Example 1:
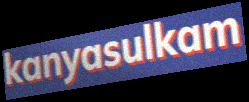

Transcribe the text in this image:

kanyasulkam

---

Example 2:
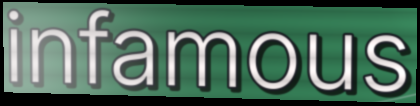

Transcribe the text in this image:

infamous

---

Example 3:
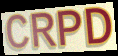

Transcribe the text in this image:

CRPD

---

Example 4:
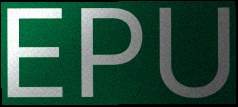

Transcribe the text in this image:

EPU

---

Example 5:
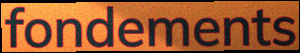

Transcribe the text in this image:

fondements